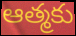
ఆత్మకు